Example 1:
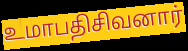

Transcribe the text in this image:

உமாபதிசிவனார்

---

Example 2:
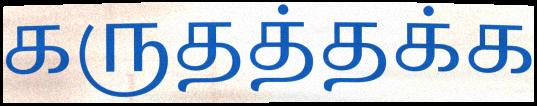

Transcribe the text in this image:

கருதத்தக்க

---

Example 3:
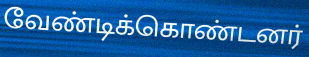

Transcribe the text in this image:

வேண்டிக்கொண்டனர்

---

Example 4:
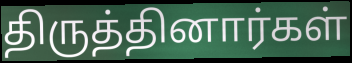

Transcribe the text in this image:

திருத்தினார்கள்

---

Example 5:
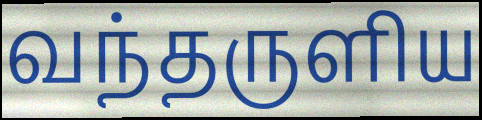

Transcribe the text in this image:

வந்தருளிய